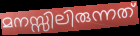
മനസ്സിലിരുന്നത്